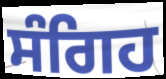
ਸੰਗਿਹ